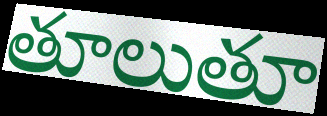
తూలుతూ